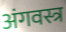
अंगवस्त्र